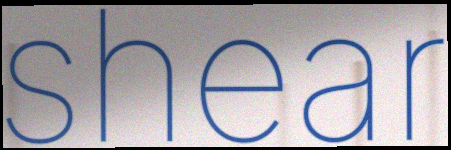
shear